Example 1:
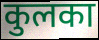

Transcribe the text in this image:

कुलका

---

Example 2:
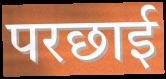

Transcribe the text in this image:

परछाई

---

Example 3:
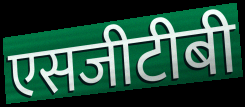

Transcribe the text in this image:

एसजीटीबी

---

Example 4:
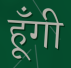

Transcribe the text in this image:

हूँगी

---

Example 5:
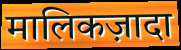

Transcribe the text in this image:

मालिकज़ादा